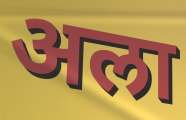
अला